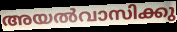
അയൽവാസിക്കു